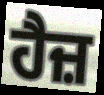
ਹੈਜ਼